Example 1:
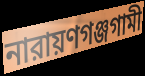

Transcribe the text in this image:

নারায়ণগঞ্জগামী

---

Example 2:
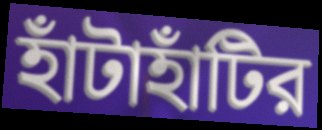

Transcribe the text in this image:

হাঁটাহাঁটির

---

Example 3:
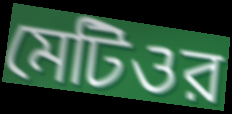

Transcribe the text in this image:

মেটিওর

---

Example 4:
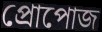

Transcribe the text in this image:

প্রোপোজ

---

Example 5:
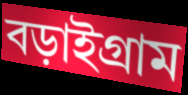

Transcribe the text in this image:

বড়াইগ্রাম